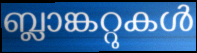
ബ്ലാങ്കറ്റുകൾ